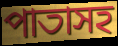
পাতাসহ